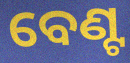
ବେଣ୍ଟ